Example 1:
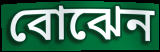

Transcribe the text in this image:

বোঝেন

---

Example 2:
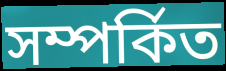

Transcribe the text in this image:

সম্পর্কিত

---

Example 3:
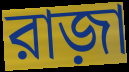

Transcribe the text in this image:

রাজ়া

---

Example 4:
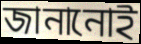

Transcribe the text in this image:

জানানোই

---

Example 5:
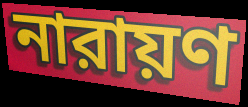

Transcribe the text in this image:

নারায়ণ